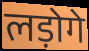
लड़ोगे